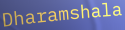
Dharamshala